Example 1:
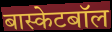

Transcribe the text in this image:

बास्‍केटबॉल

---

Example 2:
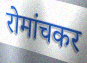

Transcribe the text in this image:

रोमांचकर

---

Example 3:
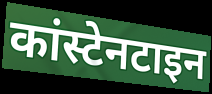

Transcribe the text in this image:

कांस्टेनटाइन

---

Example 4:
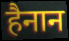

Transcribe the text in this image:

हैनान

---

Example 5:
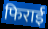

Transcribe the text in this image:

फिराई